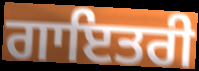
ਗਾਇਤਰੀ